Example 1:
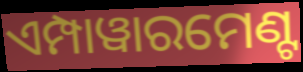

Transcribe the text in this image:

ଏମ୍ପାୱାରମେଣ୍ଟ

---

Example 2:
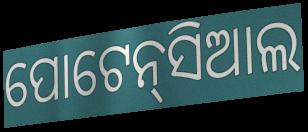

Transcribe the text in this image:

ପୋଟେନ୍‌ସିଆଲ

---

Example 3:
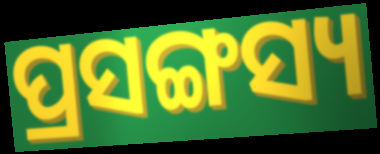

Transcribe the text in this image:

ପ୍ରସଙ୍ଗସ୍ୟ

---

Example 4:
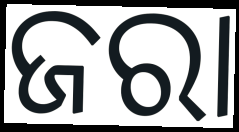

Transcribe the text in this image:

ଜରା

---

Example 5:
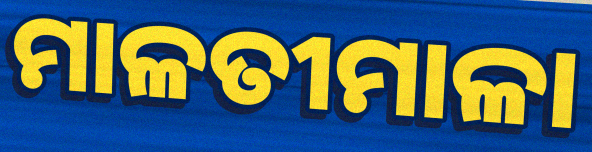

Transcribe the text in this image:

ମାଳତୀମାଳା